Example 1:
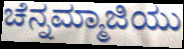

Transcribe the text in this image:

ಚೆನ್ನಮ್ಮಾಜಿಯು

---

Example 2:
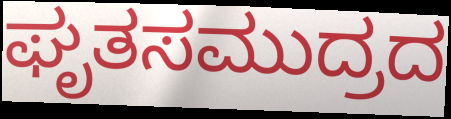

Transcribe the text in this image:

ಘೃತಸಮುದ್ರದ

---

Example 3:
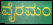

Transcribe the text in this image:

ವೈರಮಂ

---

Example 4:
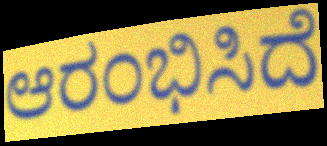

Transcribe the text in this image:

ಆರಂಭಿಸಿದೆ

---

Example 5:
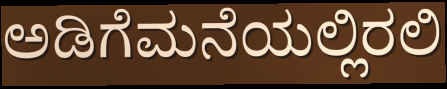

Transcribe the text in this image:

ಅಡಿಗೆಮನೆಯಲ್ಲಿರಲಿ